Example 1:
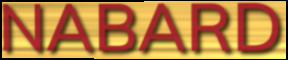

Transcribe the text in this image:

NABARD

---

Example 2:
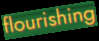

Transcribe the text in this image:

flourishing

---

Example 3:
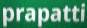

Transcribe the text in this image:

prapatti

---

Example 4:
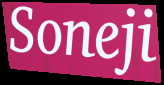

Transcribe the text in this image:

Soneji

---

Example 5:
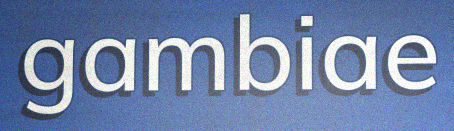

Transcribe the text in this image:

gambiae